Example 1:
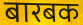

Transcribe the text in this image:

बारबक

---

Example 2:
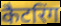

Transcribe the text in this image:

कैटरिंग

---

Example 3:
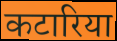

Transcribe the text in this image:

कटारिया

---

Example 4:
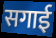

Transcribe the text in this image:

सगाई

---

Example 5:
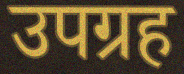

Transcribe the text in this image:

उपग्रह